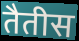
तैतीस